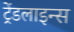
ट्रेंडलाइन्स